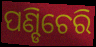
ପଣ୍ଡିଚେରି